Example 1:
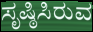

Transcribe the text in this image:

ಸೃಷ್ಠಿಸಿರುವ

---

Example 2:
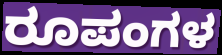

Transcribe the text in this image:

ರೂಪಂಗಳ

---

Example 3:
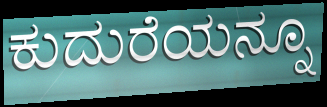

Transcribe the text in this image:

ಕುದುರೆಯನ್ನೂ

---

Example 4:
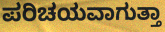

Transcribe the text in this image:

ಪರಿಚಯವಾಗುತ್ತಾ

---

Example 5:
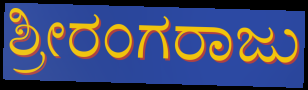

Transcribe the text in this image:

ಶ್ರೀರಂಗರಾಜು